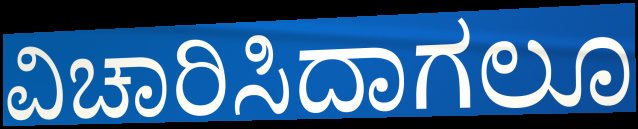
ವಿಚಾರಿಸಿದಾಗಲೂ